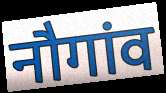
नौगांव